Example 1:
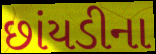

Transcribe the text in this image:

છાંયડીના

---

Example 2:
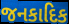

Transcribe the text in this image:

જનકાદિક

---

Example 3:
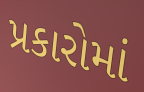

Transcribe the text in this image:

પ્રકારોમાં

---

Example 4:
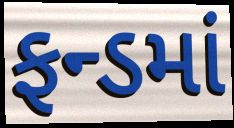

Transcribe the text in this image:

ફન્ડમાં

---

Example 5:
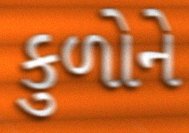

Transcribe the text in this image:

કુળોને